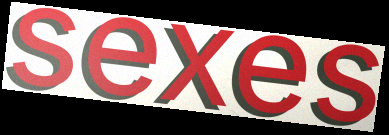
sexes